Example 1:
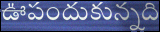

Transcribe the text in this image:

ఊపందుకున్నది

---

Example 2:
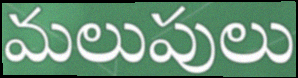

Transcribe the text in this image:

మలుపులు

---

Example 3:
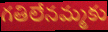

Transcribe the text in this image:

గతిలేనమ్మకు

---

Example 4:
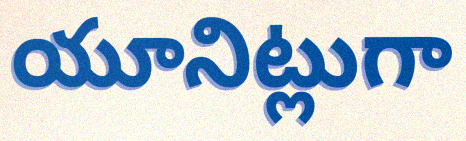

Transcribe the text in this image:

యూనిట్లుగా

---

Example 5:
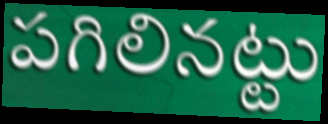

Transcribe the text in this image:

పగిలినట్టు